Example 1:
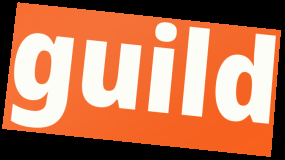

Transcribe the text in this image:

guild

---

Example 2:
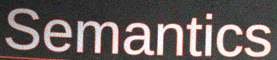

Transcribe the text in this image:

Semantics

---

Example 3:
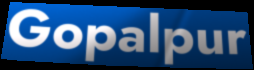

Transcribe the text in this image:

Gopalpur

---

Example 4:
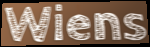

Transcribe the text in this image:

Wiens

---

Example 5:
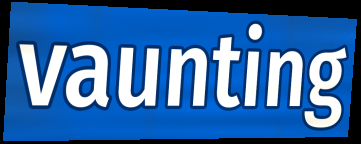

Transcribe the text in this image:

vaunting